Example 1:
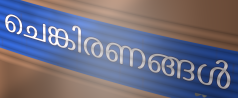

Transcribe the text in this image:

ചെങ്കിരണങ്ങൾ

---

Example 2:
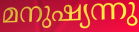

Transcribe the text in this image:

മനുഷ്യന്നു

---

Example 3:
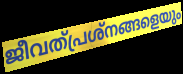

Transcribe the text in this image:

ജീവത്പ്രശ്നങ്ങളെയും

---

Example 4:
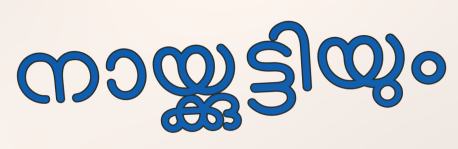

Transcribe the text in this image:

നായ്ക്കുട്ടിയും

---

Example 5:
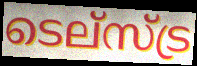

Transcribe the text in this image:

ടെല്സ്ട്ര